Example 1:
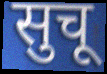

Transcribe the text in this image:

सुचू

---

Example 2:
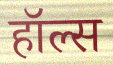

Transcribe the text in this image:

हॉल्स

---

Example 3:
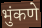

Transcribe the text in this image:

भुंकणे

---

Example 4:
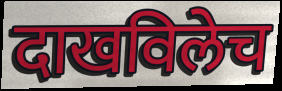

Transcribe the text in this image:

दाखविलेच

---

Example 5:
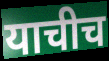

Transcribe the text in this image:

याचीच